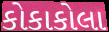
કોકાકોલા